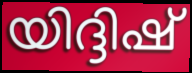
യിദ്ദിഷ്